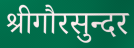
श्रीगौरसुन्दर